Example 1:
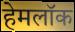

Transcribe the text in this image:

हेमलॉक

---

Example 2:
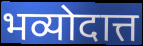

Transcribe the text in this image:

भव्योदात्त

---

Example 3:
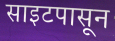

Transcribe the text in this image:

साइटपासून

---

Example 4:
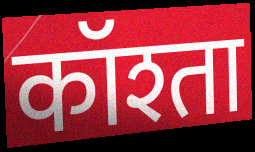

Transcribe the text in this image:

कॉश्ता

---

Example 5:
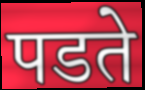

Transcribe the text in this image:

पडते